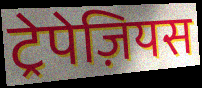
ट्रेपेज़ियस